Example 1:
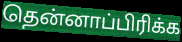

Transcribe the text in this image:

தென்னாப்பிரிக்க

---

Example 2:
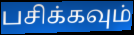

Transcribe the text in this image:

பசிக்கவும்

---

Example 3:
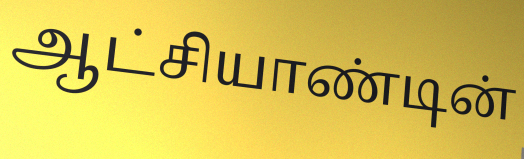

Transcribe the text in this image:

ஆட்சியாண்டின்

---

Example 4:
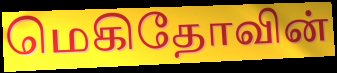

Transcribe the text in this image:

மெகிதோவின்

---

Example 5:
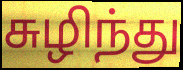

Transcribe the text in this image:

சுழிந்து